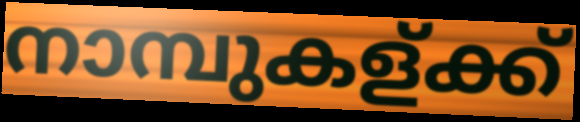
നാമ്പുകള്ക്ക്